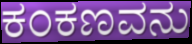
ಕಂಕಣವನು